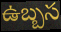
ఉబ్బస